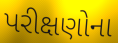
પરીક્ષણોના